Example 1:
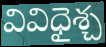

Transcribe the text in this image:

వివిధైశ్చ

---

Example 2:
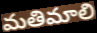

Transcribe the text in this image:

మతిమాలి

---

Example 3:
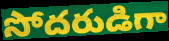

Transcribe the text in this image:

సోదరుడిగా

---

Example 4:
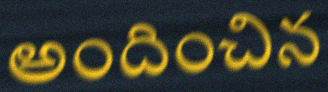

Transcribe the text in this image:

అందించిన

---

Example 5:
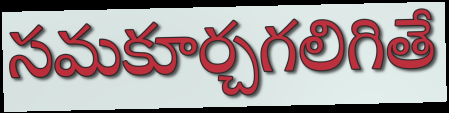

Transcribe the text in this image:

సమకూర్చగలిగితే